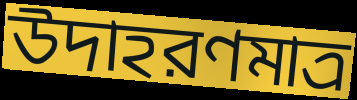
উদাহরণমাত্র